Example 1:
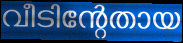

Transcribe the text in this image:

വീടിന്റേതായ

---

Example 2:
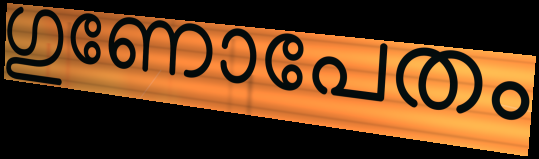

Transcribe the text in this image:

ഗുണോപേതം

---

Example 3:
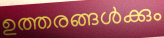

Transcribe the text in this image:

ഉത്തരങ്ങൾക്കും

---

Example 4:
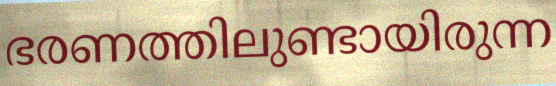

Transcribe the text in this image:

ഭരണത്തിലുണ്ടായിരുന്ന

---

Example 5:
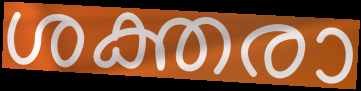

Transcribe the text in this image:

ശക്തരാ